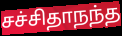
சச்சிதாநந்த